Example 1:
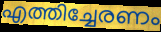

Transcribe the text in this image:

എത്തിച്ചേരണം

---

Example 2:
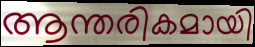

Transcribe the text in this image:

ആന്തരികമായി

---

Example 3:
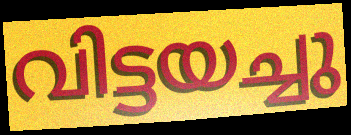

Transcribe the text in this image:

വിട്ടയച്ചു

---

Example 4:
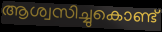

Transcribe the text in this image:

ആശ്വസിച്ചുകൊണ്ട്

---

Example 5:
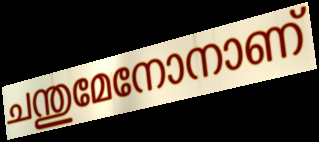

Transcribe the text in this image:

ചന്തുമേനോനാണ്